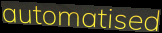
automatised